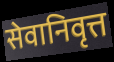
सेवानिवृत्त